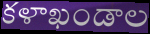
కళాఖండాల